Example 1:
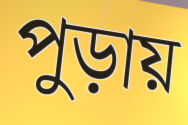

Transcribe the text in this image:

পুড়ায়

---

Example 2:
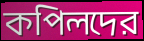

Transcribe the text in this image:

কপিলদের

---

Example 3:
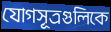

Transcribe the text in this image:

যোগসূত্রগুলিকে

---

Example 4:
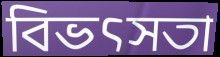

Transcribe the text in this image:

বিভৎসতা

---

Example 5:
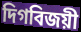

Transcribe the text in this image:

দিগবিজয়ী